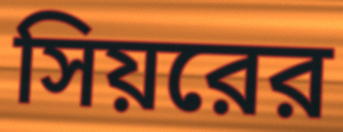
সিয়রের